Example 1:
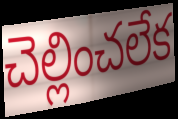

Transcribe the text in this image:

చెల్లించలేక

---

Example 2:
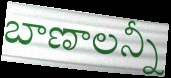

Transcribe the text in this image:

బాణాలన్నీ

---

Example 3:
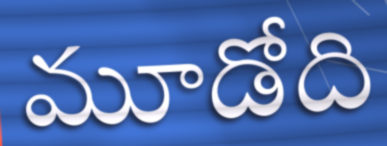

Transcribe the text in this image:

మూడోది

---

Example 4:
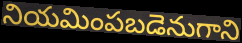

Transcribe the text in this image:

నియమింపబడెనుగాని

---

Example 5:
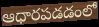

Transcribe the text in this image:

ఆధారపడడంలో